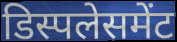
डिस्पलेसमेंट